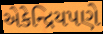
એકેન્દ્રિયપણે